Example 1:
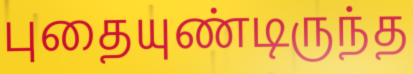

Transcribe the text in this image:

புதையுண்டிருந்த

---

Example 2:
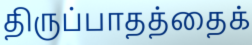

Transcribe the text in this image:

திருப்பாதத்தைக்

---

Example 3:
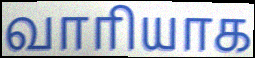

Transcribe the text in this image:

வாரியாக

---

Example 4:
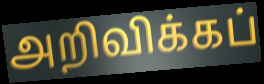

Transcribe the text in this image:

அறிவிக்கப்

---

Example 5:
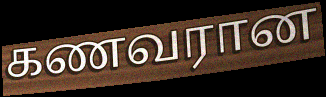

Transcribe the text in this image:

கணவரான